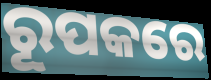
ରୂପକରେ